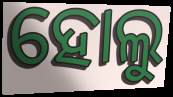
ହୋଲୁ